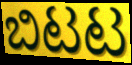
ಬಿಟಟ